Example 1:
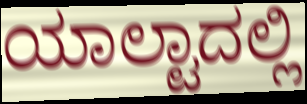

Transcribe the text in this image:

ಯಾಲ್ಟಾದಲ್ಲಿ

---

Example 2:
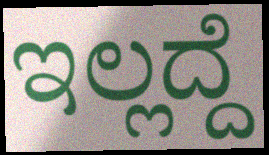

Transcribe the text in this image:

ಇಲ್ಲದ್ದೆ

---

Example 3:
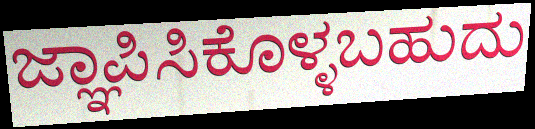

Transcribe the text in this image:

ಜ್ಞಾಪಿಸಿಕೊಳ್ಳಬಹುದು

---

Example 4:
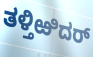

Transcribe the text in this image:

ತಳ್ತಿಱಿದರ್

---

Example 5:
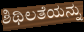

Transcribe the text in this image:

ಶಿಥಿಲತೆಯನ್ನು